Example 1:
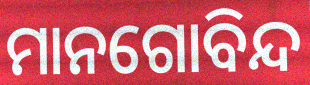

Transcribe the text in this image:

ମାନଗୋବିନ୍ଦ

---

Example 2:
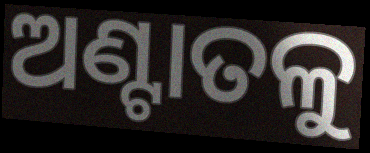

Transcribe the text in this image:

ଅଣ୍ଟାତଳୁ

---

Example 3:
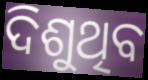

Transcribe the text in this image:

ଦିଶୁଥିବ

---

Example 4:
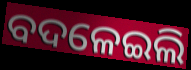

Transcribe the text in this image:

ବଦଳେଇଲି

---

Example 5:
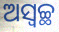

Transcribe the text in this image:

ଅସ୍ଵଚ୍ଛ